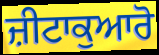
ਜ਼ੀਟਾਕੁਆਰੋ